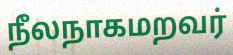
நீலநாகமறவர்